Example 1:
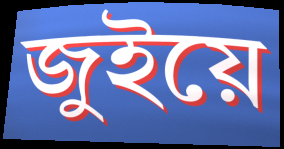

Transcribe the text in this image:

জুইয়ে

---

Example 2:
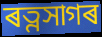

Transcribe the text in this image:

ৰত্নসাগৰ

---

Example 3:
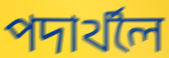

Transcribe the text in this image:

পদাৰ্থলৈ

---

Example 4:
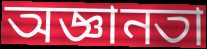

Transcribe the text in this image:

অজ্ঞানতা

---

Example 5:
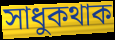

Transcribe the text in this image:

সাধুকথাক